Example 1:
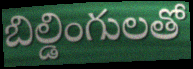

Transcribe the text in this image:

బిల్డింగులతో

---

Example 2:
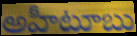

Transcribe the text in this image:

అహీటూబు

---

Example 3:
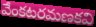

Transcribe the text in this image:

వేంకటరమణకవి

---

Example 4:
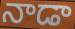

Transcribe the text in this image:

నాడా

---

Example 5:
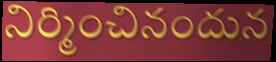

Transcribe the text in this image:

నిర్మించినందున